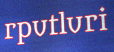
rputluri